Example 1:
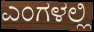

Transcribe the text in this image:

ಎಂಗಳಲ್ಲಿ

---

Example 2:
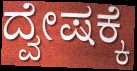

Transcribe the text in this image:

ದ್ವೇಷಕ್ಕೆ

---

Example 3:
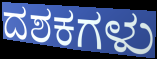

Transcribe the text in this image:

ದಶಕಗಳು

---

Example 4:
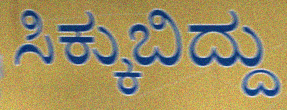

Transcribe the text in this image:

ಸಿಕ್ಕುಬಿದ್ದು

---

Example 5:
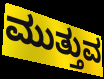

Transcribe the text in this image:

ಮುತ್ತುವ